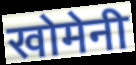
खोमेनी